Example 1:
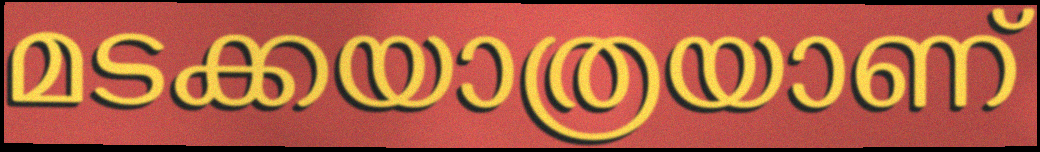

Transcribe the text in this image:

മടക്കയാത്രയാണ്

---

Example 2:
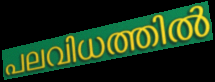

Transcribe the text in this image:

പലവിധത്തിൽ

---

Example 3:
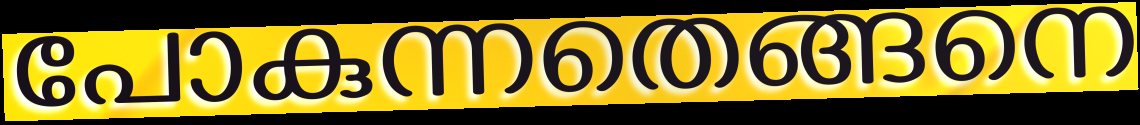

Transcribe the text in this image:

പോകുന്നതെങ്ങനെ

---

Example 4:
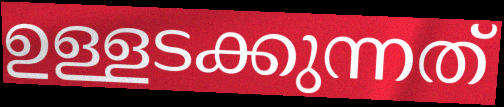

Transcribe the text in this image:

ഉള്ളടക്കുന്നത്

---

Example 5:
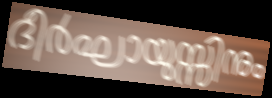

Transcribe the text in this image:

ദീർഘായുസ്സിനും